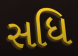
સધિ